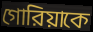
গোরিয়াকে